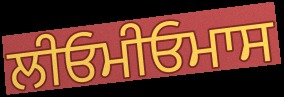
ਲੀਓਮੀਓਮਾਸ